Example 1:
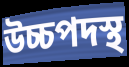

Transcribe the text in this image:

উচ্চপদস্থ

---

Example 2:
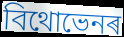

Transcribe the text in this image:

বিথোভেনৰ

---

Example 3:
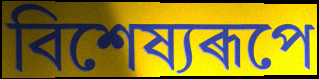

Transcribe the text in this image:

বিশেষ্যৰূপে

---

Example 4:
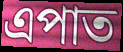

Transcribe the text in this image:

এপাত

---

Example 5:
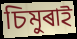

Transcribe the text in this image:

চিমুৰাই